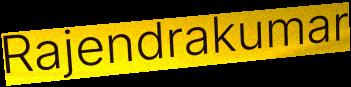
Rajendrakumar